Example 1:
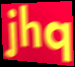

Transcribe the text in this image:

jhq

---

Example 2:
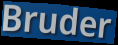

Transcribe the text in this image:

Bruder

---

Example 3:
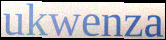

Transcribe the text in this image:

ukwenza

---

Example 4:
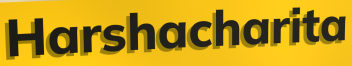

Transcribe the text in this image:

Harshacharita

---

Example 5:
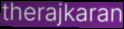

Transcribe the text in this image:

therajkaran